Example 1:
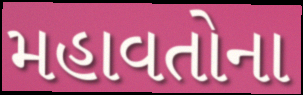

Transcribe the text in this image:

મહાવતોના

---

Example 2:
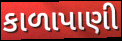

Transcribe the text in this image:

કાળાપાણી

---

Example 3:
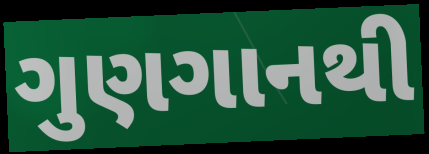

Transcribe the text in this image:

ગુણગાનથી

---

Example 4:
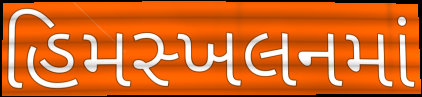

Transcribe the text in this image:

હિમસ્ખલનમાં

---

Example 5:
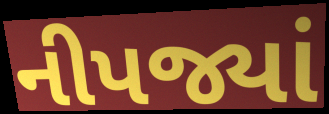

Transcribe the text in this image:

નીપજ્યાં